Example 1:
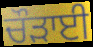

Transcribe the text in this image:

ਚੌੜਾਈ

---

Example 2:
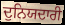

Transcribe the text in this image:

ਦੁਨਿਯਦਾਰੀ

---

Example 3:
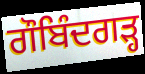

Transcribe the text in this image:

ਗੌਬਿੰਦਗੜ੍ਹ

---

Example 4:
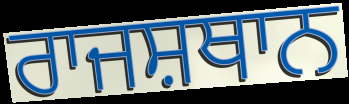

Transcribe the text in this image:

ਰਾਜਸ਼ਥਾਨ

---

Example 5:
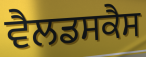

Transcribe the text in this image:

ਵੈਲਡਸਕੈਸ